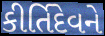
કીર્તિદેવને